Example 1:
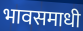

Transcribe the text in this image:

भावसमाधी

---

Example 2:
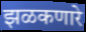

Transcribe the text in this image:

झळकणारे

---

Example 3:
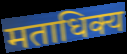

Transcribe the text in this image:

मताधिक्‍य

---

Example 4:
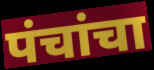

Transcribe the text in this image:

पंचांचा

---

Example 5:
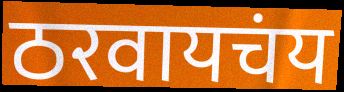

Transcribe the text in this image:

ठरवायचंय